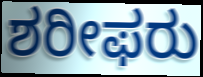
ಶರೀಫರು